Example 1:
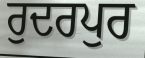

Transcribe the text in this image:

ਰੁਦਰਪੁਰ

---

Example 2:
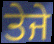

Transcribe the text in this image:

ਤੇਜੇ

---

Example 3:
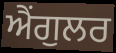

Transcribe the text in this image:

ਐਂਗੁਲਰ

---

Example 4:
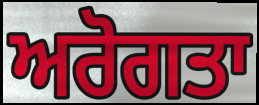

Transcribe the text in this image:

ਅਰੋਗਤਾ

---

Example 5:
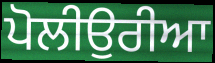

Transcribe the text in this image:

ਪੋਲੀਉਰੀਆ